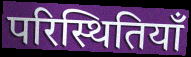
परिस्थितियाँ